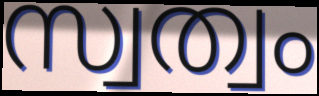
സ്വത്വം